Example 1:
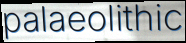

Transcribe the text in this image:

palaeolithic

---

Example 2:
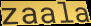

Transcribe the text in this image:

zaala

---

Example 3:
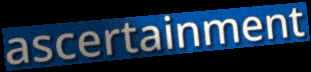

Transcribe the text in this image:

ascertainment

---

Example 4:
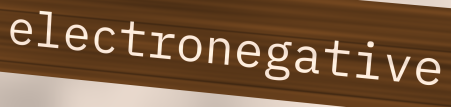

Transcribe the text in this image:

electronegative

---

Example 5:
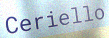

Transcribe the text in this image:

Ceriello